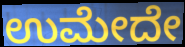
ಉಮೇದೇ